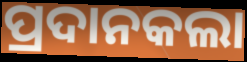
ପ୍ରଦାନକଲା